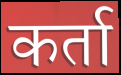
कर्ता